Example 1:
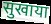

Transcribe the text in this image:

सुखाया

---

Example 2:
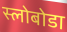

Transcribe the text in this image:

स्लोबोडा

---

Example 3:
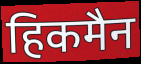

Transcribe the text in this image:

हिकमैन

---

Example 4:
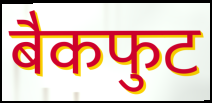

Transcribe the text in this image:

बैकफुट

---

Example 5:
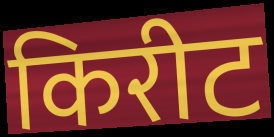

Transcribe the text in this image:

किरीट